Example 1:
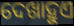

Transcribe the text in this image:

ଦେଖାହୁଏ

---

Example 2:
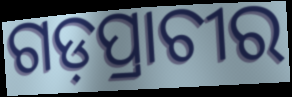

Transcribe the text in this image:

ଗଡ଼ପ୍ରାଚୀର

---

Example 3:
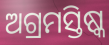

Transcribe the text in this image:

ଅଗ୍ରମସ୍ତିଷ୍କ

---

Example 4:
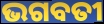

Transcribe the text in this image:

ଭଗବତୀ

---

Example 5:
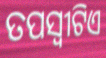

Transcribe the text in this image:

ତପସ୍ୱୀଟିଏ